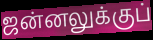
ஜன்னலுக்குப்